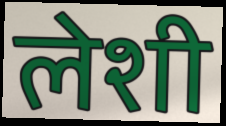
लेशी